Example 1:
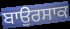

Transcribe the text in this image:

ਬਾਉਰਸਾਕ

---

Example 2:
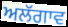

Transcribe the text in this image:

ਅਲੱਗਾਵ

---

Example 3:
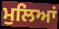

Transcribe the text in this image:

ਮੁਲਿਆਂ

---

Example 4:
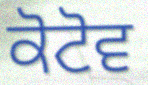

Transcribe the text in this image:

ਕੋਟੋਵ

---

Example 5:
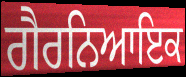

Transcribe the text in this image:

ਗੈਰਨਿਆਇਕ